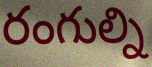
రంగుల్ని